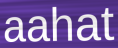
aahat